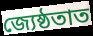
জ্যেষ্ঠতাত